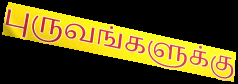
புருவங்களுக்கு